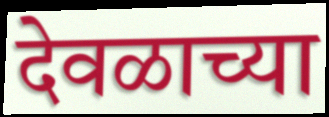
देवळाच्या